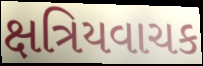
ક્ષત્રિયવાચક